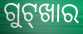
ଗୁଟ୍‌ଖାର